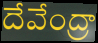
దేవేంద్రా